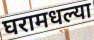
घरामधल्या